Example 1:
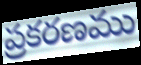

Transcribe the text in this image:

ప్రకరణము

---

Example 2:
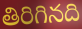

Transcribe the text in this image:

తిరిగినది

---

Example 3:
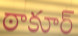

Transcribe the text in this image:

ఠాకూర్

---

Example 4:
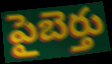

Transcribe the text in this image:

పైబెర్తు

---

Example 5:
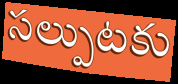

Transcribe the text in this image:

సల్పుటకు